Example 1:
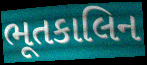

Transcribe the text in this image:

ભૂતકાલિન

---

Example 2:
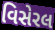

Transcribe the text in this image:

વિસેરલ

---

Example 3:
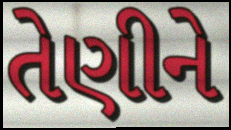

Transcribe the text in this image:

તેણીને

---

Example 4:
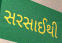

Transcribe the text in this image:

સરસાઈથી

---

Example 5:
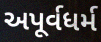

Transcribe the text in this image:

અપૂર્વધર્મ